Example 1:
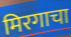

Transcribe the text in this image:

मिरगाचा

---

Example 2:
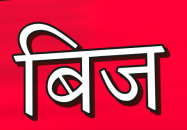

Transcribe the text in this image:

बिज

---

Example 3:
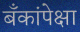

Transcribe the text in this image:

बँकांपेक्षा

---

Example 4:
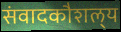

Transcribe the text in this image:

संवादकौशल्य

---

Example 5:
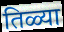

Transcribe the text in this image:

तिळ्या